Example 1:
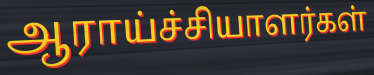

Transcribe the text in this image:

ஆராய்ச்சியாளர்கள்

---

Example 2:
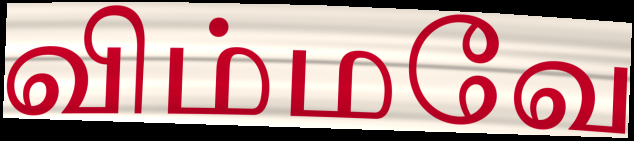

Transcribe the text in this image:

விம்மவே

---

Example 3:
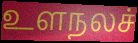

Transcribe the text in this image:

உளநலச்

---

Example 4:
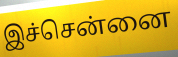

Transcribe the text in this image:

இச்சென்னை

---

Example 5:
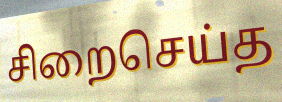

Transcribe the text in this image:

சிறைசெய்த